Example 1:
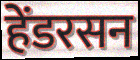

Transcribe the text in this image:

हेंडरसन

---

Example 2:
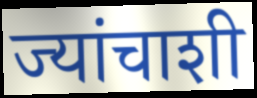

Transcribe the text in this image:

ज्यांचाशी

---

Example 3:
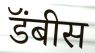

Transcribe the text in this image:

डॅंबीस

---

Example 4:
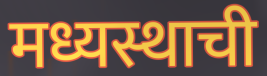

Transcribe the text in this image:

मध्यस्थाची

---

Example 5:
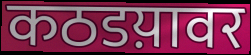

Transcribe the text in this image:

कठडय़ावर